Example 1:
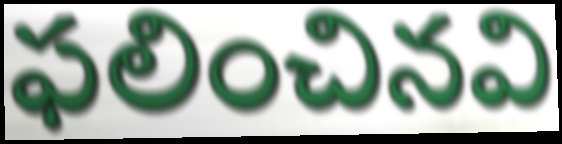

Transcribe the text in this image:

ఫలించినవి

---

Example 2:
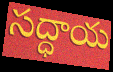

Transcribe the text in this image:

సద్ధాయ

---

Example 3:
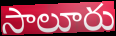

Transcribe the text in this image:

సాలూరు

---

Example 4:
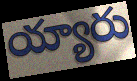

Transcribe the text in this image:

య్యారు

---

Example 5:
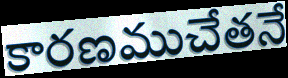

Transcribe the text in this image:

కారణముచేతనే